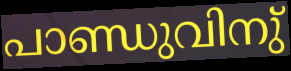
പാണ്ഡുവിനു്